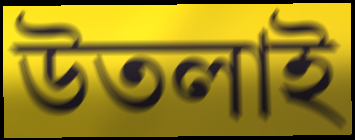
উতলাই